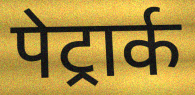
पेट्रार्क